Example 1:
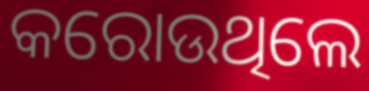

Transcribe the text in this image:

କରୋଉଥିଲେ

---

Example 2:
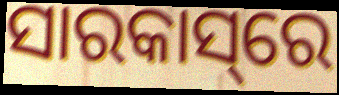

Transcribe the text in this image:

ସାରକାସ୍‌ରେ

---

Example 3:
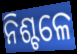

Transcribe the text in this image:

ନିଶ୍ଚଳେ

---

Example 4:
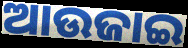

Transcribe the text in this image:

ଆଉଜାଇ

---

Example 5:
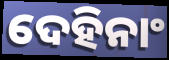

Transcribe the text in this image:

ଦେହିନାଂ